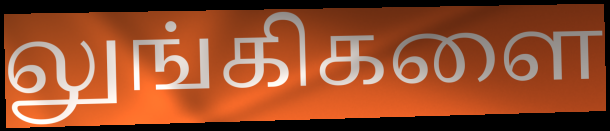
லுங்கிகளை